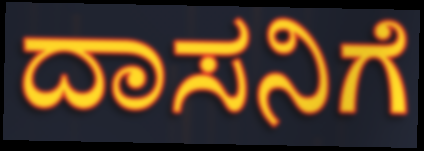
ದಾಸನಿಗೆ